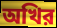
অখির